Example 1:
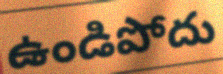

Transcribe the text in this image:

ఉండిపోదు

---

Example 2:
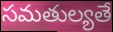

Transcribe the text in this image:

సమతుల్యతే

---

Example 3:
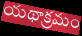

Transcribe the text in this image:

యథాక్రమం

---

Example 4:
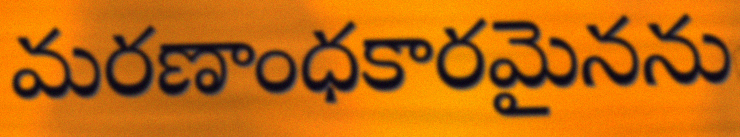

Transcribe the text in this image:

మరణాంధకారమైనను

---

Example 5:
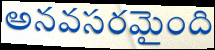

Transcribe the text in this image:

అనవసరమైంది